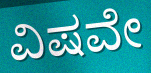
ವಿಷವೇ